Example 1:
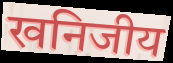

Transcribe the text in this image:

खनिजीय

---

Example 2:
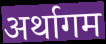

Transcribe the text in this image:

अर्थागम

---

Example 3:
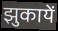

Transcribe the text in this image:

झुकायें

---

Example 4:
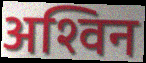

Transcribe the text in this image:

अश्विन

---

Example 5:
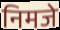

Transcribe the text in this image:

निमजे